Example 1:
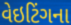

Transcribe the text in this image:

વેઇટિંગના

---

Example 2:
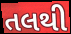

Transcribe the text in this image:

તલથી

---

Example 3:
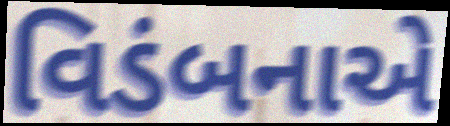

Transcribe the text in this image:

વિડંબનાએ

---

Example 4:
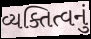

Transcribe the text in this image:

વ્યક્તિત્વનું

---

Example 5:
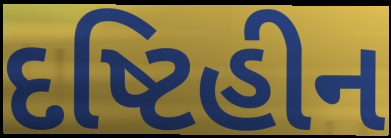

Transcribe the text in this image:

દષ્ટિહીન